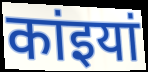
कांइयां